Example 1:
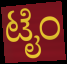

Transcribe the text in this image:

ಟೈಂ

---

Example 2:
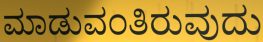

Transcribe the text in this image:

ಮಾಡುವಂತಿರುವುದು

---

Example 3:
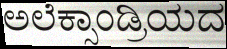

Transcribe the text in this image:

ಅಲೆಕ್ಸಾಂಡ್ರಿಯದ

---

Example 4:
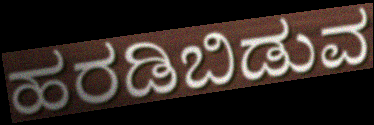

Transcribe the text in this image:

ಹರಡಿಬಿಡುವ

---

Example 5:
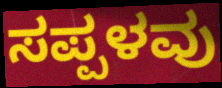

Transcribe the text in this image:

ಸಪ್ಪಳವು